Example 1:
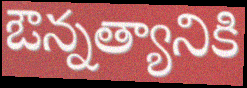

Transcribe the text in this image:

ఔన్నత్యానికి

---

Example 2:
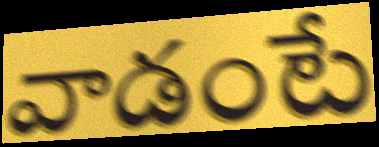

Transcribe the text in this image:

వాడంటే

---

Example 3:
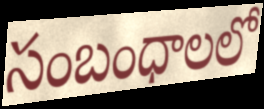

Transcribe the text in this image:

సంబంధాలలో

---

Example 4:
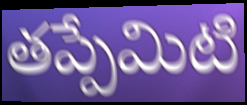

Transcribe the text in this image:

తప్పేమిటి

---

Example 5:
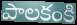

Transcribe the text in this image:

పాలకంకి